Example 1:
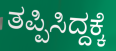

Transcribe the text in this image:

ತಪ್ಪಿಸಿದ್ದಕ್ಕೆ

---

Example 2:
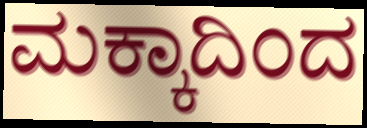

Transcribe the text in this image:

ಮಕ್ಕಾದಿಂದ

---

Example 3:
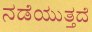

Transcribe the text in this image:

ನಡೆಯುತ್ತದೆ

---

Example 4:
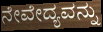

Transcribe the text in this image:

ನೇವೇದ್ಯವನ್ನು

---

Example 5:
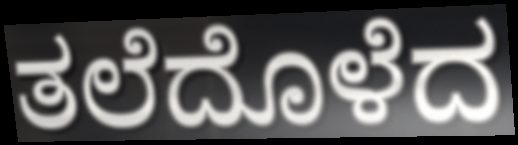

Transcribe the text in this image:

ತಲೆದೊಳೆದ